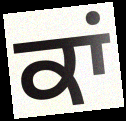
ਕਾਂ